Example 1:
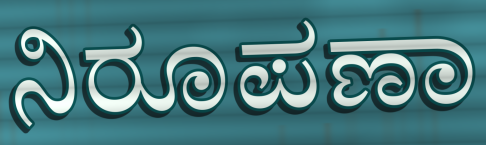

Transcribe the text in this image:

ನಿರೂಪಣಾ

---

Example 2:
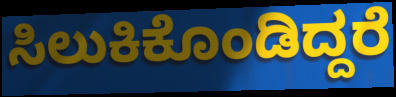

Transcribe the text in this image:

ಸಿಲುಕಿಕೊಂಡಿದ್ದರೆ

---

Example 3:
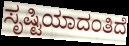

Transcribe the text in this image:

ಸೃಷ್ಟಿಯಾದಂತಿದೆ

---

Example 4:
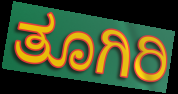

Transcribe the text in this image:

ತೂಗಿರಿ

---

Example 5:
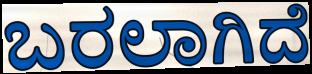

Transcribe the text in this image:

ಬರಲಾಗಿದೆ